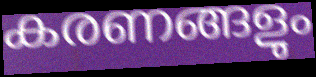
കരണങ്ങളും